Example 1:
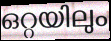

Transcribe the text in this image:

ഒറ്റയിലും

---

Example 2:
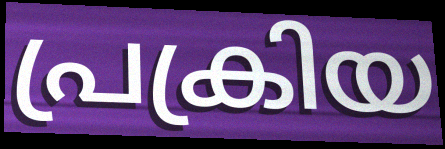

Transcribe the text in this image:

പ്രക്രിയ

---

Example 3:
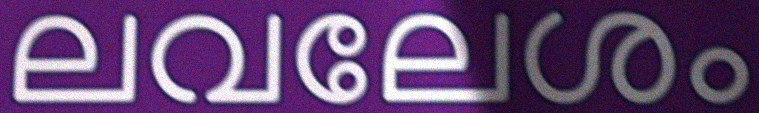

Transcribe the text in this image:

ലവലേശം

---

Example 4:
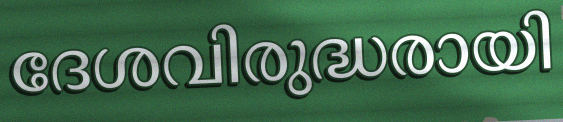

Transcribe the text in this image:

ദേശവിരുദ്ധരായി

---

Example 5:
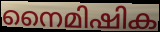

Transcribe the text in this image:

നൈമിഷിക